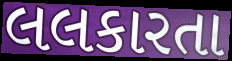
લલકારતા